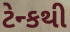
ટેન્કથી